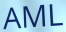
AML